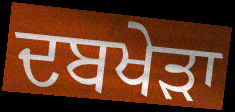
ਦਬਖੇੜਾ